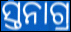
ସ୍ତନାଗ୍ର